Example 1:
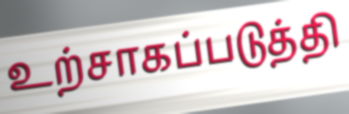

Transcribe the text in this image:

உற்சாகப்படுத்தி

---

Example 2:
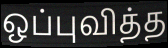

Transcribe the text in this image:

ஒப்புவித்த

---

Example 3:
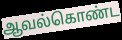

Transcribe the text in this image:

ஆவல்கொண்ட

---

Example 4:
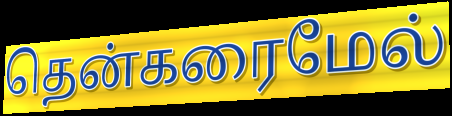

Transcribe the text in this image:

தென்கரைமேல்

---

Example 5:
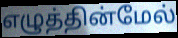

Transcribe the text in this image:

எழுத்தின்மேல்